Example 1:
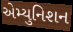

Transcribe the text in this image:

એમ્યુનિશન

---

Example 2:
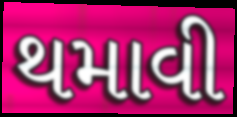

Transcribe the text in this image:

થમાવી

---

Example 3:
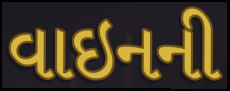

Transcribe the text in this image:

વાઇનની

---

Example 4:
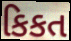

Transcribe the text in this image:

કિકત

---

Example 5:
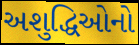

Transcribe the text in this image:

અશુદ્ધિઓનો